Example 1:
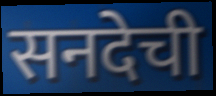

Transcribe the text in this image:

सनदेची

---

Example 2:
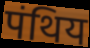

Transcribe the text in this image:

पंथिय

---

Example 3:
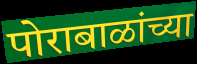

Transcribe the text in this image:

पोराबाळांच्या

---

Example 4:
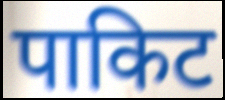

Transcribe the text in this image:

पाकिट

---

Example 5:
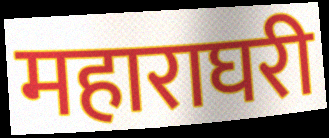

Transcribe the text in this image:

महाराघरी